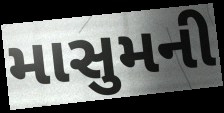
માસુમની